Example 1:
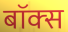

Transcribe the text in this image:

बॉक्‍स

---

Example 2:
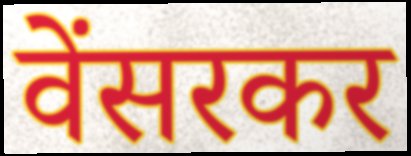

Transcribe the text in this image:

वेंसरकर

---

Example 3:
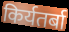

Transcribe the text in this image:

किर्यतर्बा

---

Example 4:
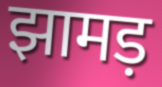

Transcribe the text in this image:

झामड़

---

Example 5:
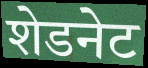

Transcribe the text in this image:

शेडनेट